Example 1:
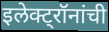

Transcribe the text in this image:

इलेक्ट्रॉनांची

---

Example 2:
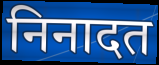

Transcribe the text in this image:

निनादत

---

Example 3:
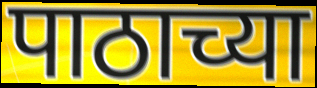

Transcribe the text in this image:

पाठाच्या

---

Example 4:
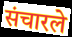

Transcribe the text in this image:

संचारले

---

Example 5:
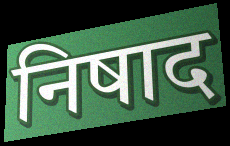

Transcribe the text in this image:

निषाद